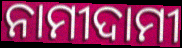
ନାମୀଦାମୀ